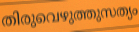
തിരുവെഴുത്തുസത്യം